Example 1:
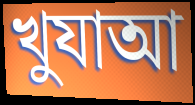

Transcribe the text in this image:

খুযাআ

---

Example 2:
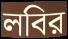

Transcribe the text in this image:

লবির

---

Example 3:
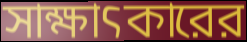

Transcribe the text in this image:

সাক্ষাৎকারের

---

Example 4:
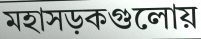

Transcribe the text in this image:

মহাসড়কগুলোয়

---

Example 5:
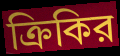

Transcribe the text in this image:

ক্রিকির